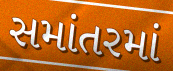
સમાંતરમાં